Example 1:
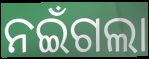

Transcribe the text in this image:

ନଇଁଗଲା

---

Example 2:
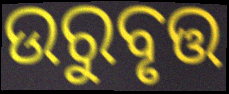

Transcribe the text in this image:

ଉରୁବୃତ୍ତ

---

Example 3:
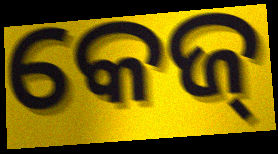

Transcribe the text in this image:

କେଜ୍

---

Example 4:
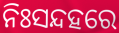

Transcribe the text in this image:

ନିଃସନ୍ଦହରେ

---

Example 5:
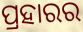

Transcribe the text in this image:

ପ୍ରହାରର